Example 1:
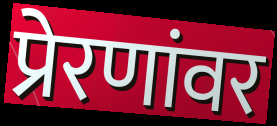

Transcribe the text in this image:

प्रेरणांवर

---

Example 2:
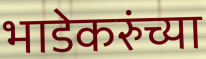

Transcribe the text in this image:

भाडेकरुंच्या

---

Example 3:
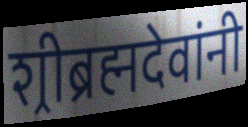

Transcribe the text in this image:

श्रीब्रह्मदेवांनी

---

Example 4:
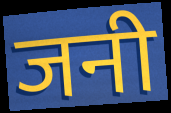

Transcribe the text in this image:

जनी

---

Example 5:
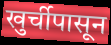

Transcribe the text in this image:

खुर्चीपासून